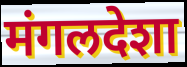
मंगलदेशा